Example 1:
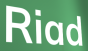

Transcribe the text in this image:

Riad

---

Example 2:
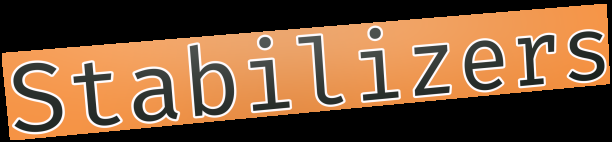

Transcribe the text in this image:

Stabilizers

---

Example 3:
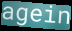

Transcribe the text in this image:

agein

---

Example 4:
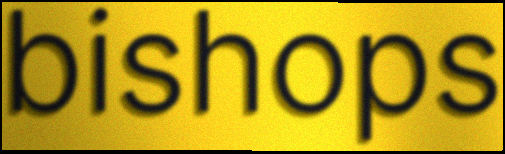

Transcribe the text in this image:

bishops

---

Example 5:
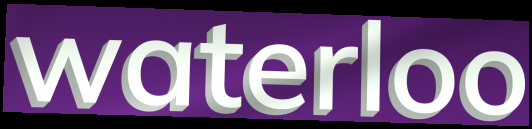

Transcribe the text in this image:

waterloo